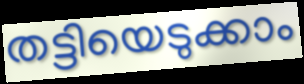
തട്ടിയെടുക്കാം